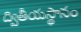
ద్వితీయస్థానం